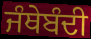
ਜੰਥੇਬੰਦੀ